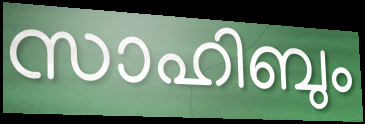
സാഹിബും